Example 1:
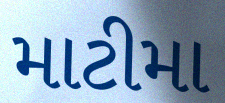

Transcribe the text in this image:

માટીમા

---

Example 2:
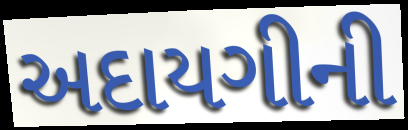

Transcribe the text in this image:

અદાયગીની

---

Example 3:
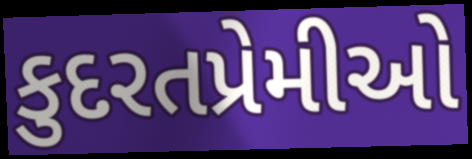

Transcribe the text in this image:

કુદરતપ્રેમીઓ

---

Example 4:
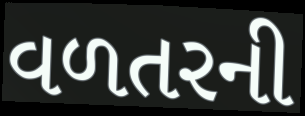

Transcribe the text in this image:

વળતરની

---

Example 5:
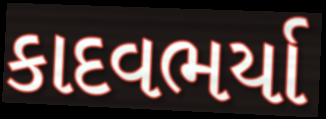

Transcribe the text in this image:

કાદવભર્યા